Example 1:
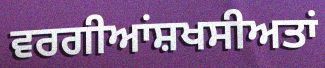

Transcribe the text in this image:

ਵਰਗੀਆਂਸ਼ਖਸੀਅਤਾਂ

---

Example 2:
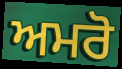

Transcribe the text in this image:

ਅਮਰੋ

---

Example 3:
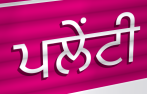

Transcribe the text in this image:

ਪਲੇਂਟੀ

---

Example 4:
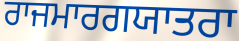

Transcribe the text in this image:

ਰਾਜਮਾਰਗਯਾਤਰਾ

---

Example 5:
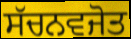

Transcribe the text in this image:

ਸੱਚਨਵਜੋਤ